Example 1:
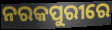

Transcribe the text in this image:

ନରକପୁରୀରେ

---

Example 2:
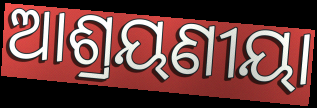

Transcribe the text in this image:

ଆଶ୍ରୟଣୀୟା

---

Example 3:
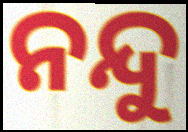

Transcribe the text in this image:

ନନ୍ଦୁ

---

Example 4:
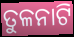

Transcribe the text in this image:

ତୁଳନାଟି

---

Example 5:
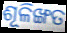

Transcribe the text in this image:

ଶୂଳିଙ୍ଖତ